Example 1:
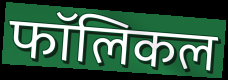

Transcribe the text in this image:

फॉलिकल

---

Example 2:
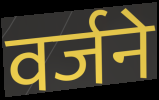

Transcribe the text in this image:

वर्जने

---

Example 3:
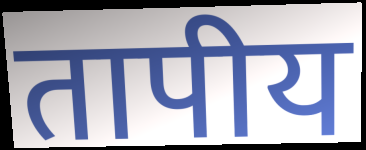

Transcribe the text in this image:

तापीय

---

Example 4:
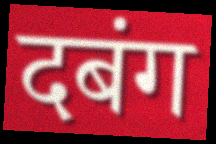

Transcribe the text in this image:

दबंग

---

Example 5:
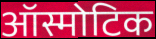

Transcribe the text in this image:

ऑस्मोटिक